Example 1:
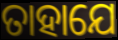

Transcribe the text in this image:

ତାହାଯେ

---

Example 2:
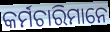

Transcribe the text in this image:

କର୍ମଚାରିମାନେ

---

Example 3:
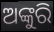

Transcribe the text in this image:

ଅଙ୍କୁରି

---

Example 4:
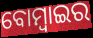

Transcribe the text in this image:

ବୋମ୍ବାଇର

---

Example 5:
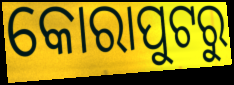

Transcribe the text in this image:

କୋରାପୁଟରୁ